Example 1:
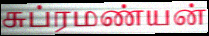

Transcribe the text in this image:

சுப்ரமண்யன்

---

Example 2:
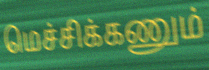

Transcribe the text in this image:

மெச்சிக்கணும்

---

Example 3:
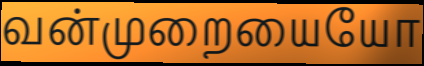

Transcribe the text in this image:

வன்முறையையோ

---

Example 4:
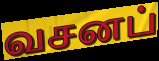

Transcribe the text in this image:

வசனப்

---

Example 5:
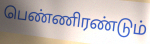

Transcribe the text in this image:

பெண்ணிரண்டும்